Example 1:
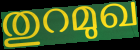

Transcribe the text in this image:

തുറമുഖ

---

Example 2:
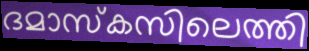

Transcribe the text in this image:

ദമാസ്കസിലെത്തി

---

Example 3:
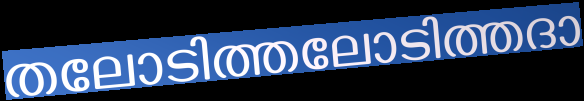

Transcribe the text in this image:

തലോടിത്തലോടിത്തദാ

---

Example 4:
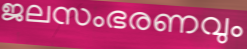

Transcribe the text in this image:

ജലസംഭരണവും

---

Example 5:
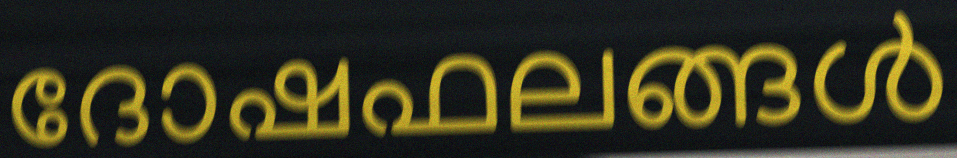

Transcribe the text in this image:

ദോഷഫലങ്ങൾ